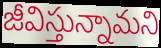
జీవిస్తున్నామని